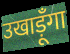
उखाड़ूँगा